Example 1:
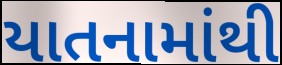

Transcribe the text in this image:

યાતનામાંથી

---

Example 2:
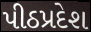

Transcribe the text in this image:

પીઠપ્રદેશ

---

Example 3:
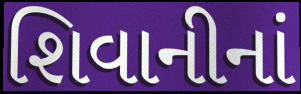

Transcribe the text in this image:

શિવાનીનાં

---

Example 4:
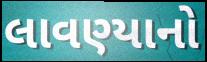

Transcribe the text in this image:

લાવણ્યાનો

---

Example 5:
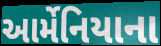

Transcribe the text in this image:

આર્મેનિયાના